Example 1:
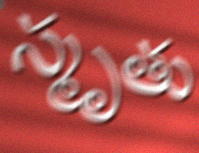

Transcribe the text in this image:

స్మృతు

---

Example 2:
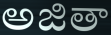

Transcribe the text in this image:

అజితా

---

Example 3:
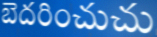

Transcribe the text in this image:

బెదరించుచు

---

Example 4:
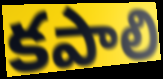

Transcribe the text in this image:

కపాలి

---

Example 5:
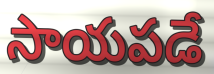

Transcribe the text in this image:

సాయపడే